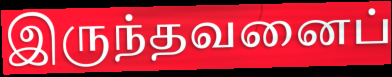
இருந்தவனைப்